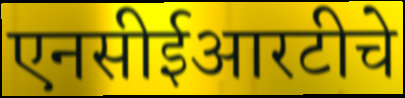
एनसीईआरटीचे